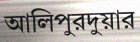
আলিপুরদুয়ার